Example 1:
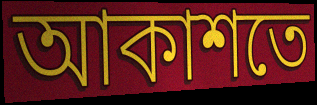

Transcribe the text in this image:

আকাশতে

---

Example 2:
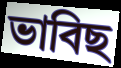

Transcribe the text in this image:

ভাবিছ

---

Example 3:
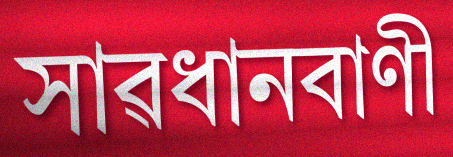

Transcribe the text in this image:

সাৱধানবাণী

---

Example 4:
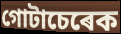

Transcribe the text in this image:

গোটাচেৰেক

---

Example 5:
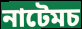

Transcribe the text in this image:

নাটেমচ